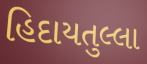
હિદાયતુલ્લા